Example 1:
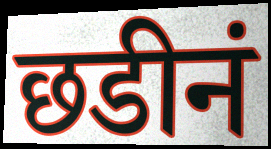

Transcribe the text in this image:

छडीनं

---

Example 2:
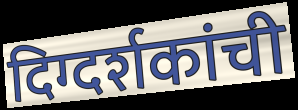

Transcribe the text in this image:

दिग्दर्शकांची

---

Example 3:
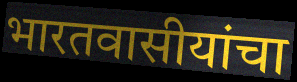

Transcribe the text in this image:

भारतवासीयांचा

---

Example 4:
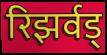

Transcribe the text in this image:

रिझर्वड्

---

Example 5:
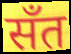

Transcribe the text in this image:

सँत